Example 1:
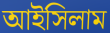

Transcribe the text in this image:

আইসিলাম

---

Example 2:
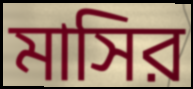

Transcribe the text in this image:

মাসির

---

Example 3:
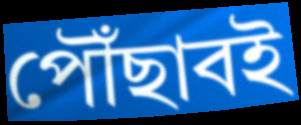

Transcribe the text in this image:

পৌঁছাবই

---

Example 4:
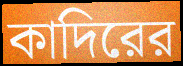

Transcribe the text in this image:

কাদিরের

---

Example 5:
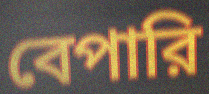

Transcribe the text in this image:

বেপারি